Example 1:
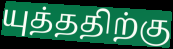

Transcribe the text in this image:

யுத்ததிற்கு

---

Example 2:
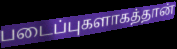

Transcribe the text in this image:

படைப்புகளாகத்தான்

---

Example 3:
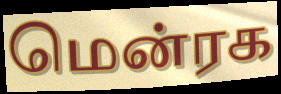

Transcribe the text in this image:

மென்ரக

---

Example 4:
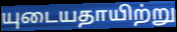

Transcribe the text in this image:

யுடையதாயிற்று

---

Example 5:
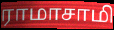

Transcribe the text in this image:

ராமாசாமி